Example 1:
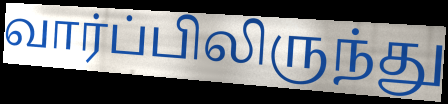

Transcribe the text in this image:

வார்ப்பிலிருந்து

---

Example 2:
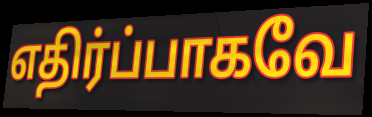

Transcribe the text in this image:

எதிர்ப்பாகவே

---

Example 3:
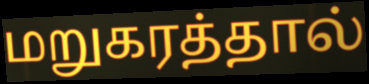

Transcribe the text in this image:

மறுகரத்தால்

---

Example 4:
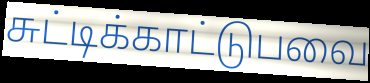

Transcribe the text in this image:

சுட்டிக்காட்டுபவை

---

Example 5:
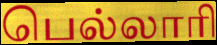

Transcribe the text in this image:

பெல்லாரி